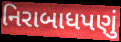
નિરાબાધપણું